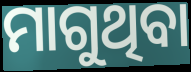
ମାଗୁଥିବା